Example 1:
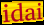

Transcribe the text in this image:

idai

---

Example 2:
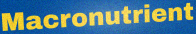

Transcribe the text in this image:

Macronutrient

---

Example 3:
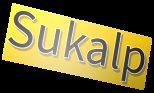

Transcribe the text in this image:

Sukalp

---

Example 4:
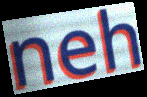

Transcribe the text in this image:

neh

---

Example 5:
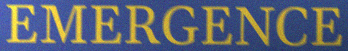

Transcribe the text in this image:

EMERGENCE